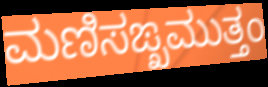
ಮಣಿಸಙ್ಖಮುತ್ತಂ